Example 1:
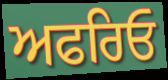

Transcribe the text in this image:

ਅਫਰਿਓ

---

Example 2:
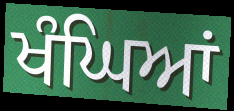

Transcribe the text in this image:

ਖੰਘਿਆਂ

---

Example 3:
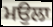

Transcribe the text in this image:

ਮਉਲਾ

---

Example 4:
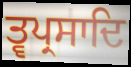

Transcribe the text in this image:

ਤ੍ਵਪ੍ਰਸਾਦਿ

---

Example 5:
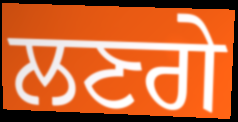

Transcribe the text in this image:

ਲਣਗੇ